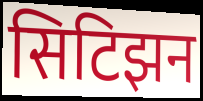
सिटिझन